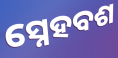
ସ୍ନେହବଶ